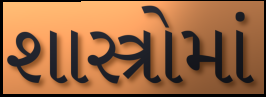
શાસ્ત્રોમાં